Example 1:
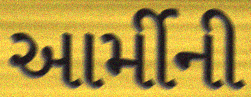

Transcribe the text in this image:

આર્મીની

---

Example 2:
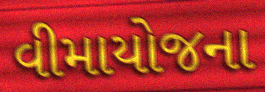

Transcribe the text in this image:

વીમાયોજના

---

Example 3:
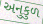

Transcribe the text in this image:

અનુકુળ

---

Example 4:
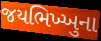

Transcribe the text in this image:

જયભિખ્ખુના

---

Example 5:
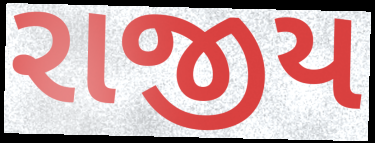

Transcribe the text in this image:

રાજીય